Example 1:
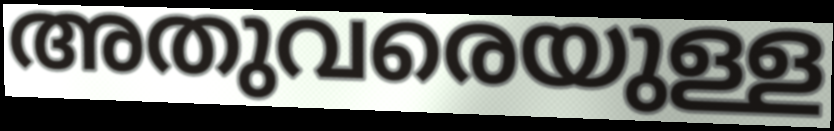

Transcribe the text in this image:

അതുവരെയുള്ള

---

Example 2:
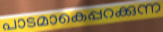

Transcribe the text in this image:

പാടമാകെപ്പറക്കുന്ന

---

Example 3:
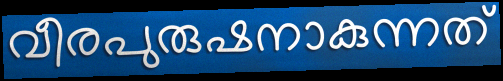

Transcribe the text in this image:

വീരപുരുഷനാകുന്നത്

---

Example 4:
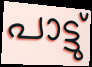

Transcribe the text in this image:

പാട്ടു്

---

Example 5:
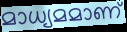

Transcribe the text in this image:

മാധ്യമമാണ്